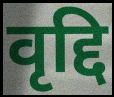
वृद्दि